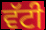
ਵੱਟੀ